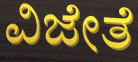
ವಿಜೇತೆ